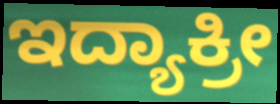
ಇದ್ಯಾಕ್ರೀ